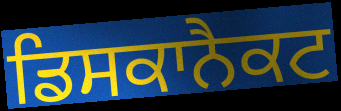
ਡਿਸਕਾਨੈਕਟ